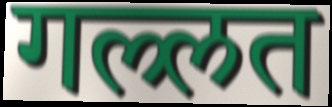
गल्लत